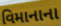
વિમાનાના